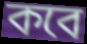
কবে